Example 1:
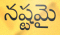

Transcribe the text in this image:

నష్టమై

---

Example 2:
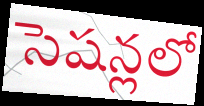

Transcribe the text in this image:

సెషన్లలో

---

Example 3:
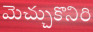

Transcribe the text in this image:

మెచ్చుకొనిరి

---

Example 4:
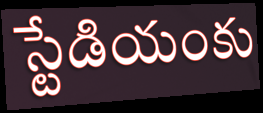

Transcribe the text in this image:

స్టేడియంకు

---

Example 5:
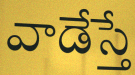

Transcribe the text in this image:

వాడేస్తే